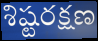
శిష్టరక్షణ